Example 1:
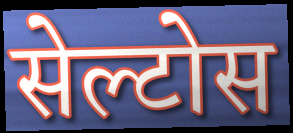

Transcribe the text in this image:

सेल्टोस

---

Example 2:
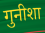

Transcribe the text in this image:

गुनीशा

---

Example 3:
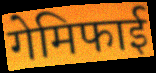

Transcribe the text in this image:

गेमिफाई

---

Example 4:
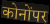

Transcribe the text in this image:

कोनोंपर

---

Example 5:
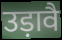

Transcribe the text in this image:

उड़ावै